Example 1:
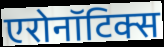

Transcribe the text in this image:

एरोनॉटिक्स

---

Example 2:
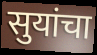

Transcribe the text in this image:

सुयांचा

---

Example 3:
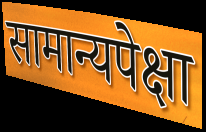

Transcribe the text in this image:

सामान्यपेक्षा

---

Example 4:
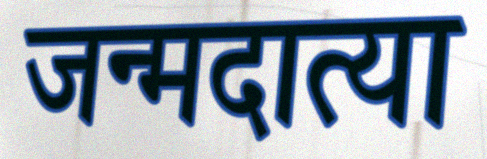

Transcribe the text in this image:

जन्मदात्या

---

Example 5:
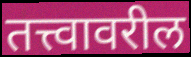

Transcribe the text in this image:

तत्त्वावरील